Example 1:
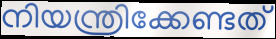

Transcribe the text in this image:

നിയന്ത്രിക്കേണ്ടത്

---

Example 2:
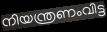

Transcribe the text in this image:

നിയന്ത്രണംവിട്ട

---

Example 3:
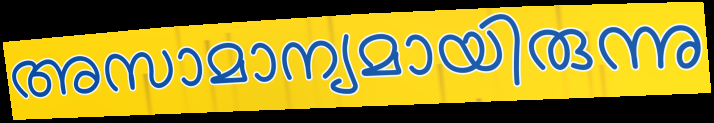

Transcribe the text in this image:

അസാമാന്യമായിരുന്നു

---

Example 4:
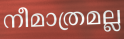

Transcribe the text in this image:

നീമാത്രമല്ല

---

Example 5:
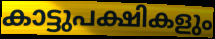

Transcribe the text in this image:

കാട്ടുപക്ഷികളും